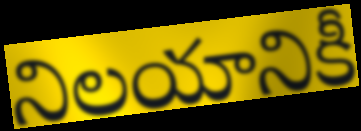
నిలయానికీ